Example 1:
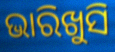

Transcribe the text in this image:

ଭାରିଖୁସି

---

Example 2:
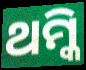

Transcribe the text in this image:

ଥମ୍କି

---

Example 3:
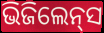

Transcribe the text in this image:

ଭିଜିଲେନ୍‌ସ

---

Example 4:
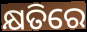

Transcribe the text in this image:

କ୍ଷତିରେ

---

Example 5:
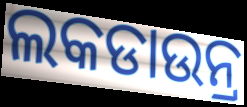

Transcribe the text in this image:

ଲକଡାଉନ୍ର